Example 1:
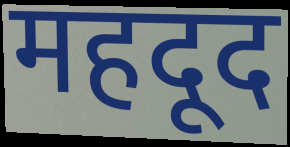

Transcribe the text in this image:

महदूद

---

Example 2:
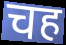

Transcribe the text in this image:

चह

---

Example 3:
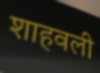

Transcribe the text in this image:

शाहवली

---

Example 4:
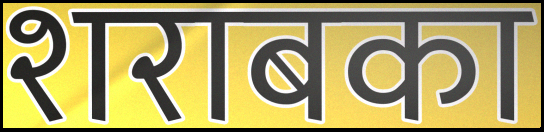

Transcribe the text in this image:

शराबका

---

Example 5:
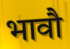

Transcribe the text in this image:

भावौ